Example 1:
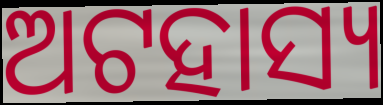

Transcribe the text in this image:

ଅଟହାସ୍ୟ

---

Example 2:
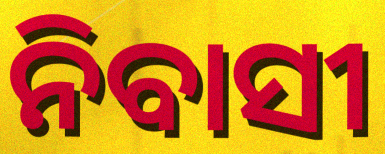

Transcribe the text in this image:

ନିବାସୀ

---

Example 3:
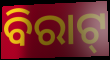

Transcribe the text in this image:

ବିରାଟ୍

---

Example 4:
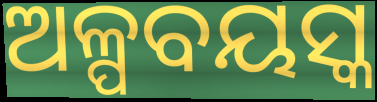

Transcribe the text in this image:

ଅଳ୍ପବୟସ୍କ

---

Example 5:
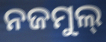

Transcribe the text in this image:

ନଜମୁଲ୍